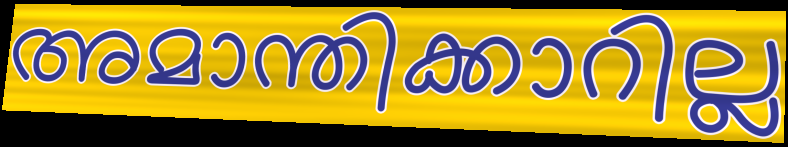
അമാന്തിക്കാറില്ല